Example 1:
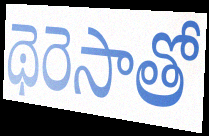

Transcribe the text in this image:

థెరెసాతో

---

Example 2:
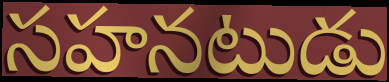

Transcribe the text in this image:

సహనటుడు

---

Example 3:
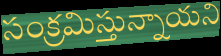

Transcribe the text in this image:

సంక్రమిస్తున్నాయని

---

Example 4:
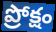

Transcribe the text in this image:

ప్రోక్షం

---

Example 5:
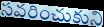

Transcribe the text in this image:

సవరించుకుని